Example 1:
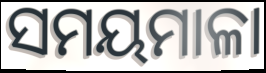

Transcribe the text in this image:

ସମୟମାଳା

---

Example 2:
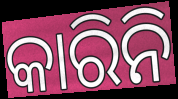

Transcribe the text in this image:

କାରିନି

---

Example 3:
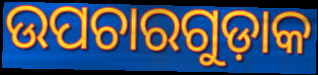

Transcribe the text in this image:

ଉପଚାରଗୁଡ଼ାକ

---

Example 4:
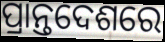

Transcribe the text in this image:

ପ୍ରାନ୍ତଦେଶରେ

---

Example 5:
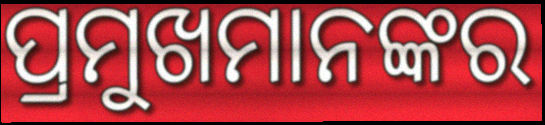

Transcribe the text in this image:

ପ୍ରମୁଖମାନଙ୍କର